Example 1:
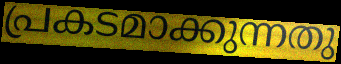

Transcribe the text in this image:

പ്രകടമാക്കുന്നതു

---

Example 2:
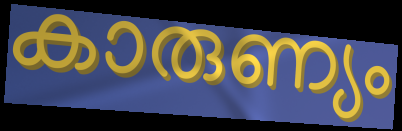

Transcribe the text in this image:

കാരുണ്യം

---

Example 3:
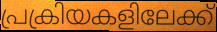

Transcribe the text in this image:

പ്രക്രിയകളിലേക്ക്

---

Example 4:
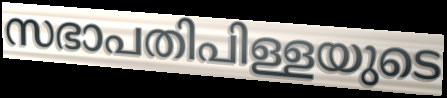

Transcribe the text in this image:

സഭാപതിപിള്ളയുടെ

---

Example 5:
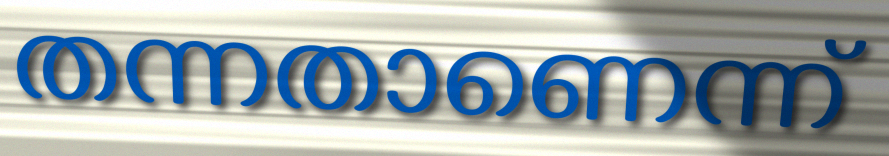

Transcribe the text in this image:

തന്നതാണെന്ന്